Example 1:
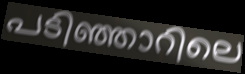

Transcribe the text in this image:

പടിഞ്ഞാറിലെ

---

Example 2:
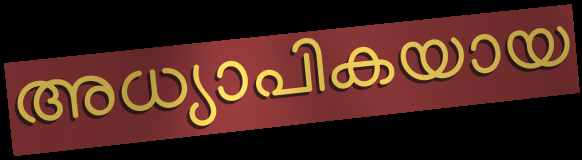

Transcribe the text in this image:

അധ്യാപികയായ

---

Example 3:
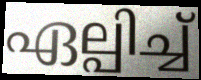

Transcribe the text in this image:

ഏല്പിച്ച്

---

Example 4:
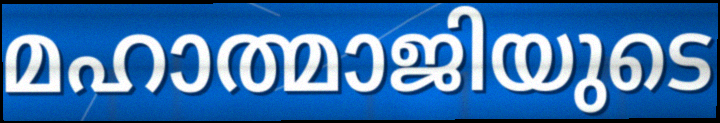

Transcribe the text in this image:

മഹാത്മാജിയുടെ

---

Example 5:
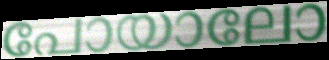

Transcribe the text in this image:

പോയാലോ